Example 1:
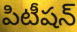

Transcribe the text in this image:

పిటీషన్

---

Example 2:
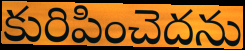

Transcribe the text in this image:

కురిపించెదను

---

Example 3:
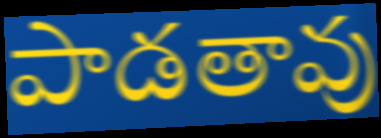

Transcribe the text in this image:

పాడతావు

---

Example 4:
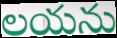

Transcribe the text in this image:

లయను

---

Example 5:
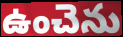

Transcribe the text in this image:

ఉంచెను